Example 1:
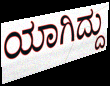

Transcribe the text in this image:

ಯಾಗಿದ್ದು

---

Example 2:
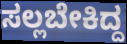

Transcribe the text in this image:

ಸಲ್ಲಬೇಕಿದ್ದ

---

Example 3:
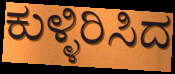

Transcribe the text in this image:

ಕುಳ್ಳಿರಿಸಿದ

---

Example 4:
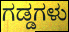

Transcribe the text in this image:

ಗಡ್ಡಗಳು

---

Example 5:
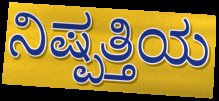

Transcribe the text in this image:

ನಿಷ್ಪತ್ತಿಯ